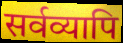
सर्वव्यापि